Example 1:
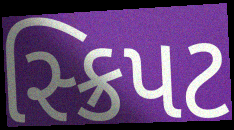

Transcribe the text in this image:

સ્ક્રિપટ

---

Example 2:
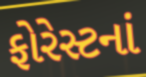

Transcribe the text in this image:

ફોરેસ્ટનાં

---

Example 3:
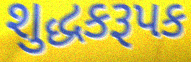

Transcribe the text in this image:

શુદ્ધકરૂપક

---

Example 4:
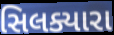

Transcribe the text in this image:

સિલક્યારા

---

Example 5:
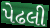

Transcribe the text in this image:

પેઢલી